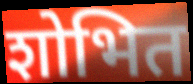
शोभित